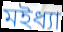
মইধ্যা